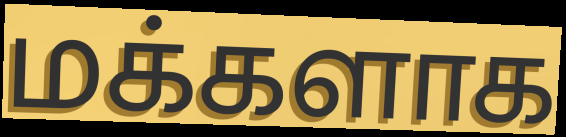
மக்களாக